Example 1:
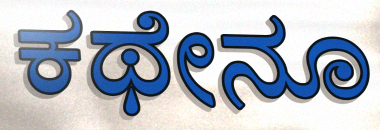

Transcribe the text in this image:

ಕಥೇನೂ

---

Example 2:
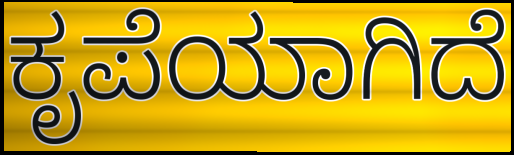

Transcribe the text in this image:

ಕೃಪೆಯಾಗಿದೆ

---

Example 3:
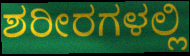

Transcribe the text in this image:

ಶರೀರಗಳಲ್ಲಿ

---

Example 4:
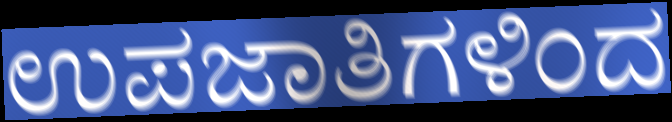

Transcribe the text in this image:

ಉಪಜಾತಿಗಳಿಂದ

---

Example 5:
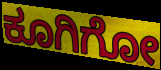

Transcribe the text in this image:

ಕೂಗಿಗೋ